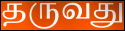
தருவது